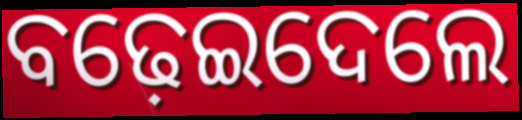
ବଢ଼େଇଦେଲେ